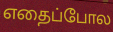
எதைப்போல